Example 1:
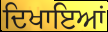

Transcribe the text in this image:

ਦਿਖਾਇਆਂ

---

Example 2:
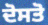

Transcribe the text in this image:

ਦੋਸਤੋ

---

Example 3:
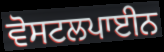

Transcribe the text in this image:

ਵੋਸਟਲਪਾਈਨ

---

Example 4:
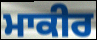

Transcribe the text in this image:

ਮਾਕੀਰ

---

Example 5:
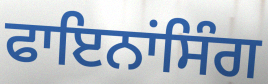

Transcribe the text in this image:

ਫਾਇਨਾਂਸਿੰਗ